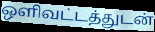
ஒளிவட்டத்துடன்